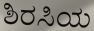
ಶಿರಸಿಯ